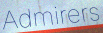
Admirers